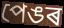
পেঙৰ